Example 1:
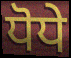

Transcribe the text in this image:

ਧੋਧੇ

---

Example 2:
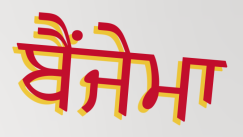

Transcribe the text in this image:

ਬੈਂਜੇਮਾ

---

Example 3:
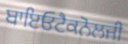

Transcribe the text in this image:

ਬਾਇਓਟੈਕਨੋਲਜੀ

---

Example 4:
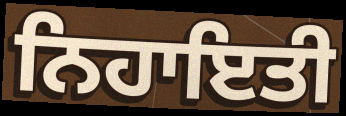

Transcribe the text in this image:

ਨਿਹਾਇਤੀ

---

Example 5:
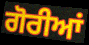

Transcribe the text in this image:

ਗੋਰੀਆਂ